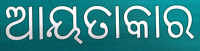
ଆୟତାକାର